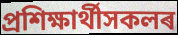
প্ৰশিক্ষাৰ্থীসকলৰ